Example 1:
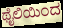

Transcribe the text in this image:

ಥೈಲಿಯಿಂದ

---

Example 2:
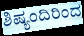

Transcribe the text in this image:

ಶಿಷ್ಯಂದಿರಿಂದ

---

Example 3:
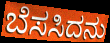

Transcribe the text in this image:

ಬೆಸಸಿದನು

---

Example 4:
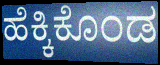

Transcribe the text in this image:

ಹೆಕ್ಕಿಕೊಂಡ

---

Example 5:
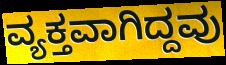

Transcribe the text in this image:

ವ್ಯಕ್ತವಾಗಿದ್ದವು